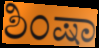
ಶಿಂಷಾ